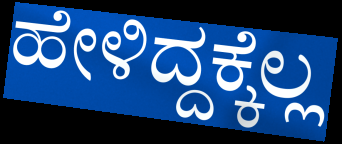
ಹೇಳಿದ್ದಕ್ಕೆಲ್ಲ